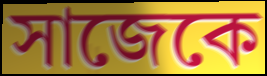
সাজেকে